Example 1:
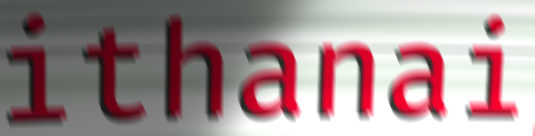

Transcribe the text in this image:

ithanai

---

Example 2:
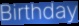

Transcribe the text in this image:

Birthday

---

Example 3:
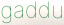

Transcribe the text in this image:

gaddu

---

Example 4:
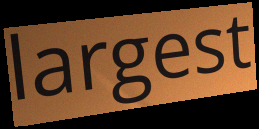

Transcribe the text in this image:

largest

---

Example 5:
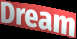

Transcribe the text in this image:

Dream